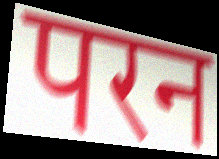
परन